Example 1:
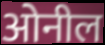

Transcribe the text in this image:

ओनील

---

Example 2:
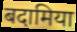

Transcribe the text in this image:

बदामिया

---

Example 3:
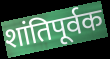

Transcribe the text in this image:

शांतिपूर्वक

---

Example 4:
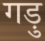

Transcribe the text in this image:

गड़ु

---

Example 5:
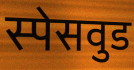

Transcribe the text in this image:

स्पेसवुड